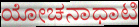
ಯೋಚನಾಧಾಟಿ